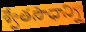
శ్వేతసౌధాన్ని